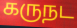
கருநட